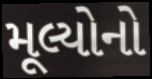
મૂલ્યોનો